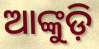
ଆଙ୍କୁଡ଼ି